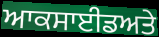
ਆਕਸਾਈਡਅਤੇ